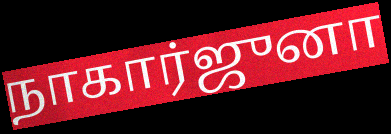
நாகார்ஜுனா